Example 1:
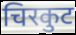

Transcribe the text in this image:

चिरकुट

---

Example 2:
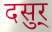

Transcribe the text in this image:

दसुर्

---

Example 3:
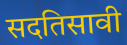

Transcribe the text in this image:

सदतिसावी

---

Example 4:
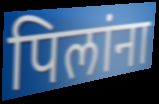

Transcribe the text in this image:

पिलांना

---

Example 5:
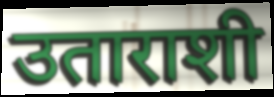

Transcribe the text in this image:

उताराशी